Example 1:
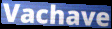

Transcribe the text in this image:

Vachave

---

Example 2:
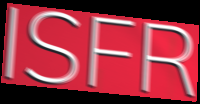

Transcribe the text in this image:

ISFR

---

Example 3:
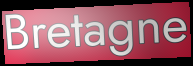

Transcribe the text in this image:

Bretagne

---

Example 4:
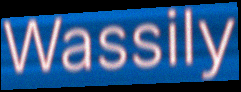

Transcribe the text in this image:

Wassily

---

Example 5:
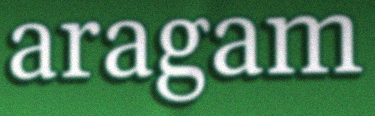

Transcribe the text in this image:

aragam